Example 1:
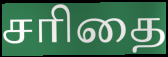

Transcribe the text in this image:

சரிதை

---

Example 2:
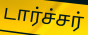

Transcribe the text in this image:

டார்ச்சர்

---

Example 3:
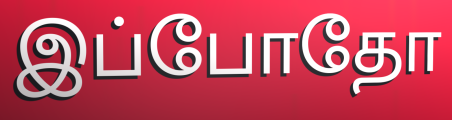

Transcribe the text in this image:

இப்போதோ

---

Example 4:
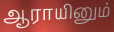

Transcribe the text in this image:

ஆராயினும்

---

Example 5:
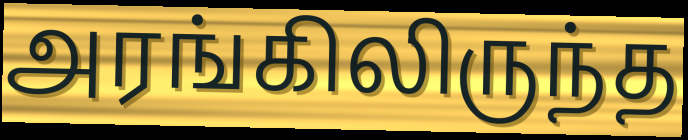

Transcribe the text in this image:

அரங்கிலிருந்த